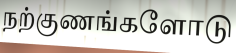
நற்குணங்களோடு